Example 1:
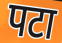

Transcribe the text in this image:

पटा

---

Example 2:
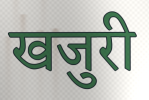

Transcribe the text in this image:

खजुरी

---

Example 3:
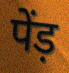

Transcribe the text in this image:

पेंड़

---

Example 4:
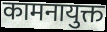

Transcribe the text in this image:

कामनायुक्त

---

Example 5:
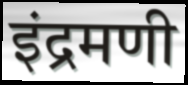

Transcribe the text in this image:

इंद्रमणी